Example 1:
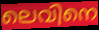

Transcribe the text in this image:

ലെവിനെ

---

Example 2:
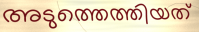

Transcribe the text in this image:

അടുത്തെത്തിയത്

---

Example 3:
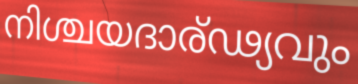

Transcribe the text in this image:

നിശ്ചയദാര്ഢ്യവും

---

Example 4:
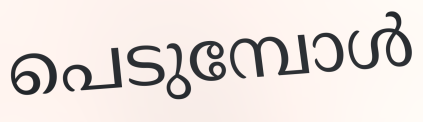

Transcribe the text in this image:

പെടുമ്പോൾ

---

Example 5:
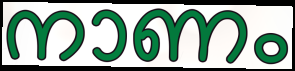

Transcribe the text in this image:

നാണം